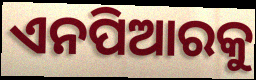
ଏନପିଆରକୁ